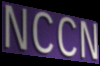
NCCN